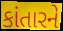
કાંતારને